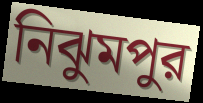
নিঝুমপুর